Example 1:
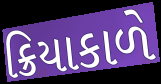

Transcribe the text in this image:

ક્રિયાકાળે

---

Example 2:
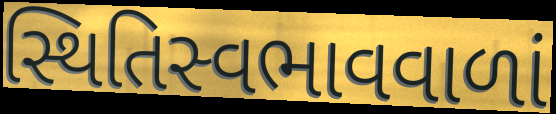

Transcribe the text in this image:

સ્થિતિસ્વભાવવાળાં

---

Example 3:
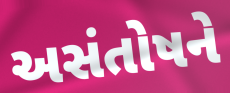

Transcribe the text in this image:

અસંતોષને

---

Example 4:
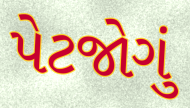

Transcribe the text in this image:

પેટજોગું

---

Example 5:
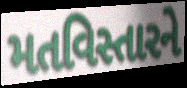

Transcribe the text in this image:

મતવિસ્તારને